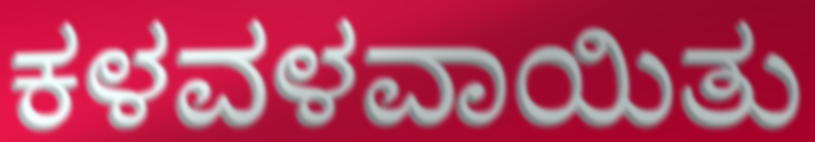
ಕಳವಳವಾಯಿತು